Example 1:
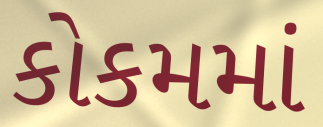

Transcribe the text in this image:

કોકમમાં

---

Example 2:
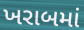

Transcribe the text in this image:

ખરાબમાં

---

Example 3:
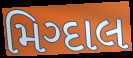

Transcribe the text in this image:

મિગ્દાલ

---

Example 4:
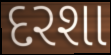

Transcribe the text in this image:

દરશા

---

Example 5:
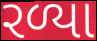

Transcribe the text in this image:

રળ્યા